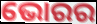
ଭୋରର